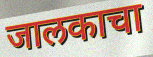
जालकाचा